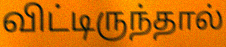
விட்டிருந்தால்